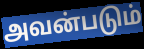
அவன்படும்